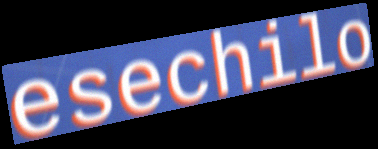
esechilo